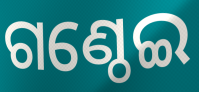
ଗଣ୍ଠେଇ